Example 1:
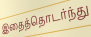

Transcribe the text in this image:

இதைத்தொடர்ந்து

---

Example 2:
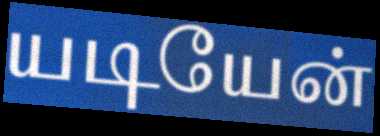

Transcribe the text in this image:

யடியேன்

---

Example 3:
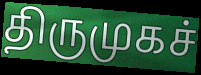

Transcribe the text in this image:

திருமுகச்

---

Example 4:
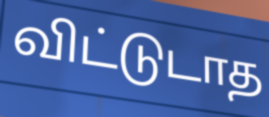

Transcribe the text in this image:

விட்டுடாத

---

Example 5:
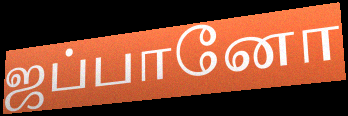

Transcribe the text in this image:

ஜப்பானோ